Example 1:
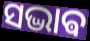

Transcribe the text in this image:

ସଦ୍ଭାଵ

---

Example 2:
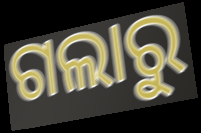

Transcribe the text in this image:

ଗଲାରୁ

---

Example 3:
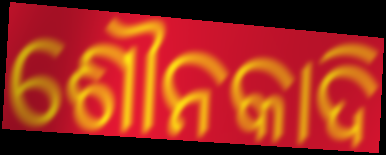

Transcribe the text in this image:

ଶୌନକାଦି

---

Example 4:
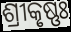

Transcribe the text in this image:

ଶ୍ରୀକୃଷ୍ଣଃ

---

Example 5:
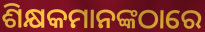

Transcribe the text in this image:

ଶିକ୍ଷକମାନଙ୍କଠାରେ